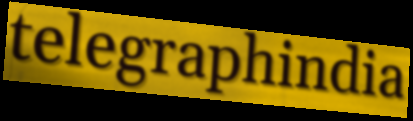
telegraphindia